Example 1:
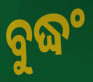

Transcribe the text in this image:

ବୁଦ୍ଧଂ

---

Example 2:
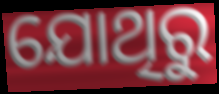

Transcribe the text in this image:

ଯୋଥିରୁ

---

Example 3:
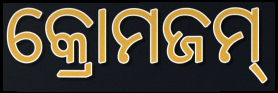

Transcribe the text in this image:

କ୍ରୋମଜମ୍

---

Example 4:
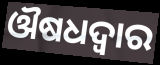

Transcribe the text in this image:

ଔଷଧଦ୍ୱାର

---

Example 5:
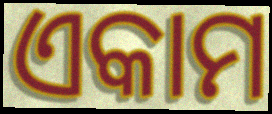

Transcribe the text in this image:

ଏକାମ